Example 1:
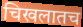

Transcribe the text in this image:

चिखलातच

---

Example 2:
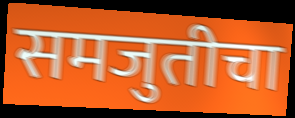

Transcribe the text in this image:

समजुतीचा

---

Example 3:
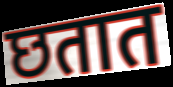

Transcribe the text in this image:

छतात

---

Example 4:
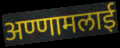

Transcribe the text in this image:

अण्णामलाई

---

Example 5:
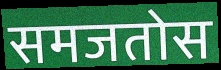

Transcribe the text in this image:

समजतोस